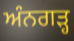
ਅੰਨਗੜ੍ਹ